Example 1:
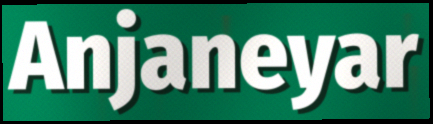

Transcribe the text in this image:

Anjaneyar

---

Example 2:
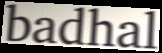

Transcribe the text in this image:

badhal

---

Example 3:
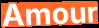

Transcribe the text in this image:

Amour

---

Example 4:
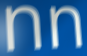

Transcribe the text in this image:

nn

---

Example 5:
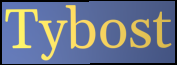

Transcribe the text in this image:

Tybost